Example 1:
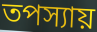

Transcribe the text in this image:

তপস্যায়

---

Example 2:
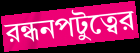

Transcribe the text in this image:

রন্ধনপটুত্বের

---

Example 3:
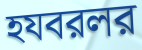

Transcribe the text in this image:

হযবরলর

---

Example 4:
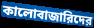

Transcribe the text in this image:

কালোবাজারিদের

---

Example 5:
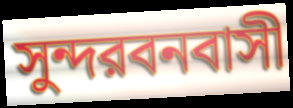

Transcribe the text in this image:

সুন্দরবনবাসী